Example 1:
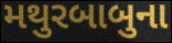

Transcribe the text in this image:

મથુરબાબુના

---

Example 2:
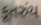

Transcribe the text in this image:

કૂતરુંય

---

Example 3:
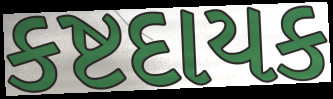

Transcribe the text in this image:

કષ્ટદાયક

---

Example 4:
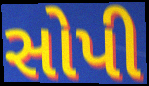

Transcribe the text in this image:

સોપી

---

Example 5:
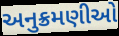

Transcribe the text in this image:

અનુક્રમણીઓ